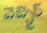
వెబ్స్టెర్